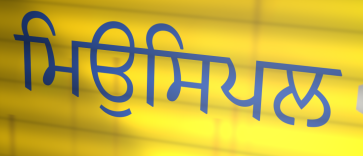
ਮਿਉਸਿਪਲ